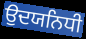
ਉਦਯਨਿਧੀ